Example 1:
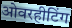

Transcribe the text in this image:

ओवरहीटिंग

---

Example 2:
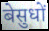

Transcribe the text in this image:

बेसुधों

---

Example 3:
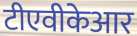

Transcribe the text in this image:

टीएवीकेआर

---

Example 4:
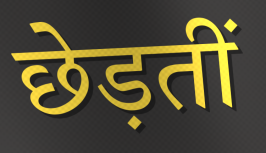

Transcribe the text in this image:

छेड़तीं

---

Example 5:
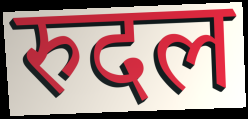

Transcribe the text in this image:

रुदल